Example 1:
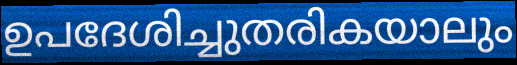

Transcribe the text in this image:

ഉപദേശിച്ചുതരികയാലും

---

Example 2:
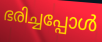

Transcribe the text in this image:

ഭരിച്ചപ്പോൾ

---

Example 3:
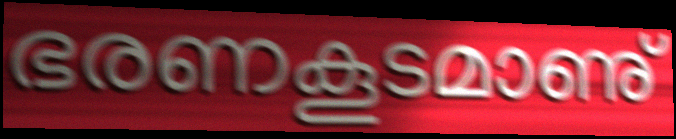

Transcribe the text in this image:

ഭരണകൂടമാണു്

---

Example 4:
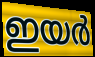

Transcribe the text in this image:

ഇയർ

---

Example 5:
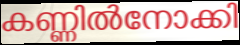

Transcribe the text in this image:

കണ്ണിൽനോക്കി